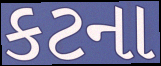
કટના